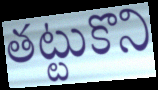
తట్టుకొని